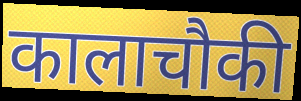
कालाचौकी